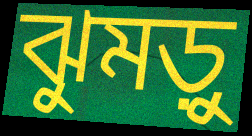
ঝুমড়ু